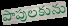
పాపులకును